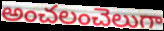
అంచలంచెలుగా